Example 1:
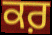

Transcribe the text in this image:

ਕਰ਼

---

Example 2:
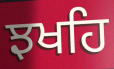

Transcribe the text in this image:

ਝਖਹਿ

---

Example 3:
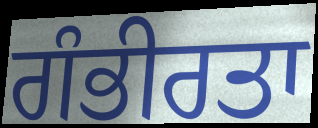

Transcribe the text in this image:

ਗੰਭੀਰਤਾ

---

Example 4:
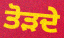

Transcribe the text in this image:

ਤੋੜਦੇ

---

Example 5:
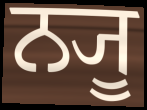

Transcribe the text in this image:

ਨ੍ਯੂ